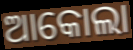
ଆକୋଲା